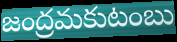
జంద్రమకుటంబు